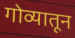
गोव्यातून